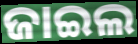
ଜାଇଲ